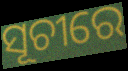
ସୂଚୀରେ